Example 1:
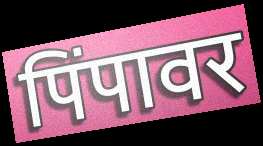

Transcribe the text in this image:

पिंपावर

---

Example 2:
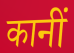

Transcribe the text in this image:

कानीं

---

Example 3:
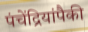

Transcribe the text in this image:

पंचेंद्रियांपैकी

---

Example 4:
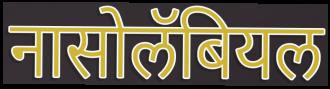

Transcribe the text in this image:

नासोलॅबियल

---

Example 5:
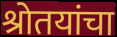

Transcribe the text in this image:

श्रोतयांचा